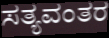
ಸತ್ಯವಂತರ